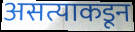
असत्याकडून